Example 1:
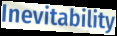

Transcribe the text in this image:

Inevitability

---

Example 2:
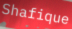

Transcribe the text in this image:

Shafique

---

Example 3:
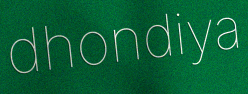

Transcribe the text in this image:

dhondiya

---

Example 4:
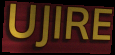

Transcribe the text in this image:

UJIRE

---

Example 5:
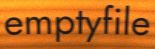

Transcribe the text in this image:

emptyfile